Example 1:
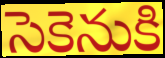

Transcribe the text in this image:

సెకెనుకి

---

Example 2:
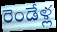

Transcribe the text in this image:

రెండేళ్ల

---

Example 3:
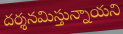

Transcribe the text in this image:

దర్శనమిస్తున్నాయని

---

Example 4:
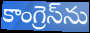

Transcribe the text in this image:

కాంగ్రెస్‌ను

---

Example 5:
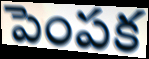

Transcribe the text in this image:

పెంపక